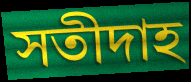
সতীদাহ